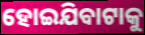
ହୋଇଯିବାଟାକୁ